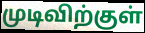
முடிவிற்குள்